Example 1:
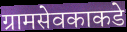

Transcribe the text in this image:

ग्रामसेवकाकडे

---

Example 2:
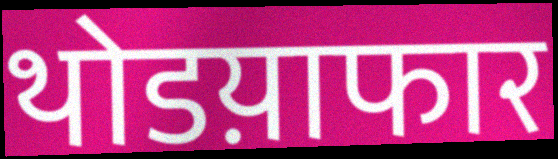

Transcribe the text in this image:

थोडय़ाफार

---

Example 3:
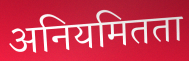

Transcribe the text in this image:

अनियमितता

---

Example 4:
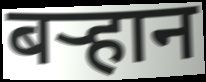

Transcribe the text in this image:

बऱ्हान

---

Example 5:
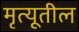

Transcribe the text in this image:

मृत्यूतील